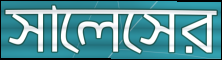
সালেসের